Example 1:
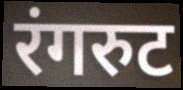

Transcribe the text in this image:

रंगरुट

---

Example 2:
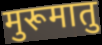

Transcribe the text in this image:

मुरूमातु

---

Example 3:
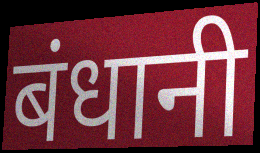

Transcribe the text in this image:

बंधानी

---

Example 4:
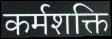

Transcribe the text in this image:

कर्मशक्ति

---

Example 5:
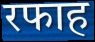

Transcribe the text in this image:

रफाह